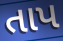
તાપ